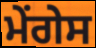
ਮੇਂਗੇਸ